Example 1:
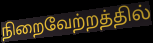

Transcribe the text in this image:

நிறைவேற்றத்தில்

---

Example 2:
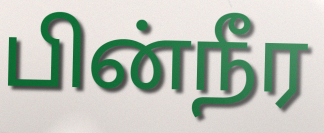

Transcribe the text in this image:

பின்நீர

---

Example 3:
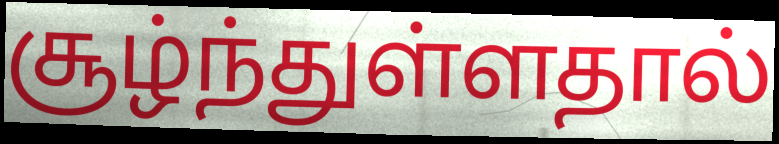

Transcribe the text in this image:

சூழ்ந்துள்ளதால்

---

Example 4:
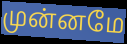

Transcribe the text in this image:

முன்னமே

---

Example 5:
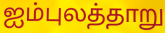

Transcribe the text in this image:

ஐம்புலத்தாறு